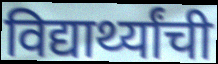
विद्यार्थ्‍यांची